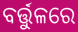
ବର୍ତ୍ତୁଳରେ